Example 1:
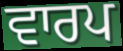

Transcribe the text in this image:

ਵਾਰਪ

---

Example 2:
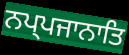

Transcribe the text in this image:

ਨਪ੍ਪਜਾਨਾਤਿ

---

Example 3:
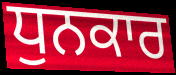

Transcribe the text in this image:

ਧੁਨਕਾਰ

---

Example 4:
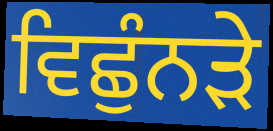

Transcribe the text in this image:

ਵਿਛੁੰਨੜੇ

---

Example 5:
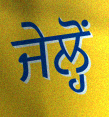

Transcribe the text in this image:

ਜੇਲ੍ਹੋਂ